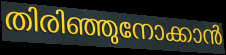
തിരിഞ്ഞുനോക്കാൻ